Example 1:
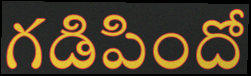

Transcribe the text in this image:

గడిపిందో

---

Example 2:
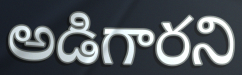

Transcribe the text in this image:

అడిగారని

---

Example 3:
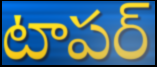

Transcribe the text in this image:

టాపర్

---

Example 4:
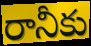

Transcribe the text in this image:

రానీకు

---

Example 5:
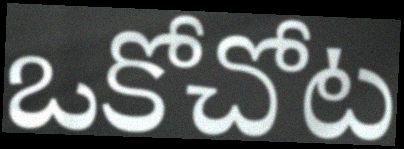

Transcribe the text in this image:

ఒకోచోట